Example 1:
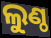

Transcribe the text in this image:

ଲୁଣ୍ଠ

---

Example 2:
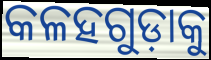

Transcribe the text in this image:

କଳହଗୁଡ଼ାକୁ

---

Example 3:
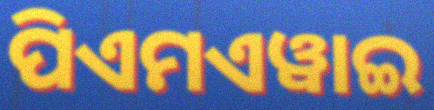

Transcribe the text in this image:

ପିଏମଏୱାଇ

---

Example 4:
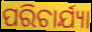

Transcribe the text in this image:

ପରିଚାର୍ଯ୍ୟା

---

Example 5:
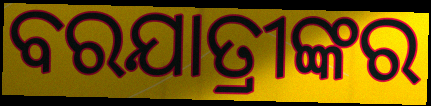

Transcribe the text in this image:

ବରଯାତ୍ରୀଙ୍କର